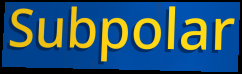
Subpolar